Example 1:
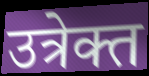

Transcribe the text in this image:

उत्रेक्त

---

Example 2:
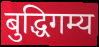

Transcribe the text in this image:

बुद्धिगम्य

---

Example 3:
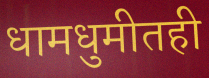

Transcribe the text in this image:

धामधुमीतही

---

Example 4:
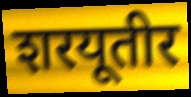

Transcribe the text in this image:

शरयूतीर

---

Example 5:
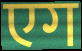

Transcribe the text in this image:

एग